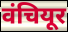
वंचियूर